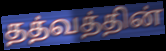
தத்வத்தின்